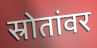
स्रोतांवर